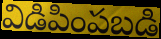
విడిపింపబడి